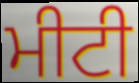
ਮੀਟੀ